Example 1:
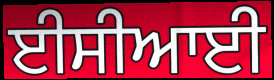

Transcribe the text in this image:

ਈਸੀਆਈ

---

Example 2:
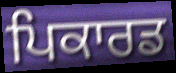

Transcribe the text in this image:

ਪਿਕਾਰਡ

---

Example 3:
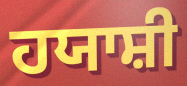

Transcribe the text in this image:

ਹਯਾਸ਼ੀ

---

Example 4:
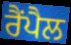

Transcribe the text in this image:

ਰੈਂਪੈਲ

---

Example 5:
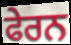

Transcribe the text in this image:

ਫੇਰਨ